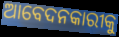
ଆବେଦନକାରୀକୁ